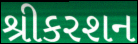
શ્રીકરશન